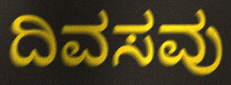
ದಿವಸವು